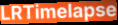
LRTimelapse